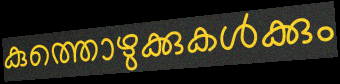
കുത്തൊഴുക്കുകൾക്കും